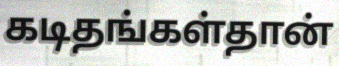
கடிதங்கள்தான்